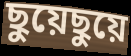
ছুয়েছুয়ে